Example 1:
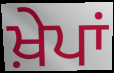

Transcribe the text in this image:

ਖ਼ੇਪਾਂ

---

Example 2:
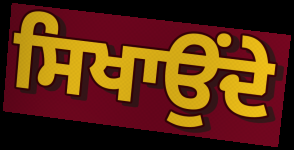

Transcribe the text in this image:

ਸਿਖਾਉਂਦੇ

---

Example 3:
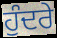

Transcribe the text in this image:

ਹੁੰਦਰੇ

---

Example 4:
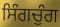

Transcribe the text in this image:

ਸਿੰਗਚੁੰਗ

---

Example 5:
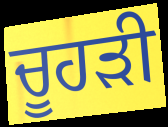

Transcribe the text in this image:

ਚੂਹੜੀ